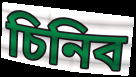
চিনিব